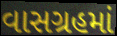
વાસગ્રહમાં